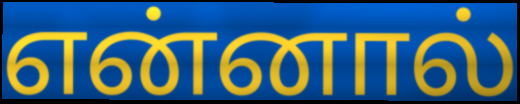
என்னால்